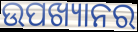
ଉପଖ୍ୟାନର